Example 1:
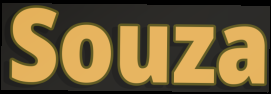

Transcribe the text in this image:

Souza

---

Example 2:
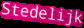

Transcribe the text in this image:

Stedelijk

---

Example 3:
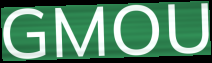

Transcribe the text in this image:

GMOU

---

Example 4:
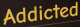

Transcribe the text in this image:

Addicted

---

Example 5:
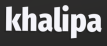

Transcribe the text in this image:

khalipa